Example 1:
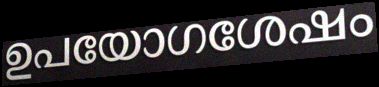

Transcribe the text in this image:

ഉപയോഗശേഷം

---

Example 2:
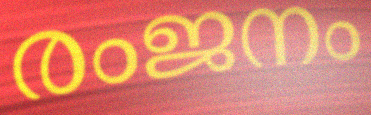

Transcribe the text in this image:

രംജനം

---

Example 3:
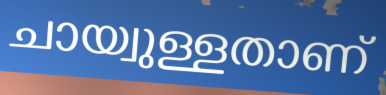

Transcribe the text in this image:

ചായ്വുള്ളതാണ്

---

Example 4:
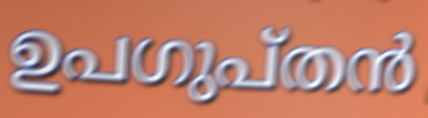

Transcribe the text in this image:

ഉപഗുപ്തൻ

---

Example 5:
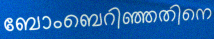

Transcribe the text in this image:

ബോംബെറിഞ്ഞതിനെ